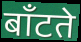
बाँटते